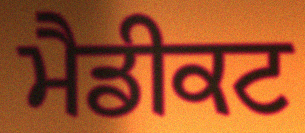
ਮੈਡੀਕਟ